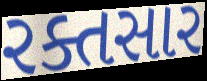
રક્તસાર